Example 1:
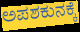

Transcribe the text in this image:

ಅಪಶಕುನಕ್ಕೆ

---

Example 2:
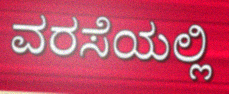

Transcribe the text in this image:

ವರಸೆಯಲ್ಲಿ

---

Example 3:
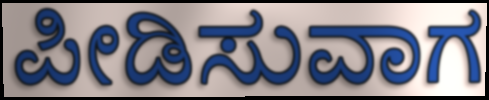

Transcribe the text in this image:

ಪೀಡಿಸುವಾಗ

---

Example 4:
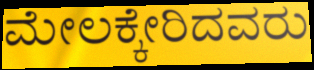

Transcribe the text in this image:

ಮೇಲಕ್ಕೇರಿದವರು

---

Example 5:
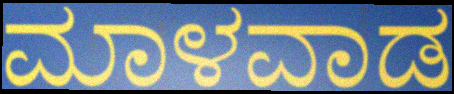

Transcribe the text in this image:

ಮಾಳವಾಡ